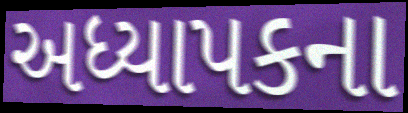
અધ્યાપકના